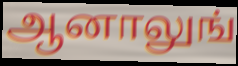
ஆனாலுங்